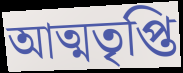
আত্মতৃপ্তি